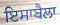
ਇਸਾਬੈਲਾ